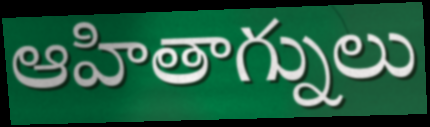
ఆహితాగ్నులు